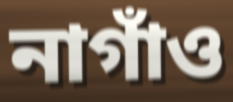
নাগাঁও